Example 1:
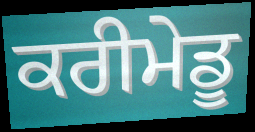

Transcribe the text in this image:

ਕਰੀਮੇਡੂ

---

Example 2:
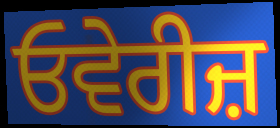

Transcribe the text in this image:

ਓਵੇਰੀਜ਼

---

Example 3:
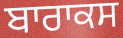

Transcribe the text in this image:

ਬਾਰਾਕਸ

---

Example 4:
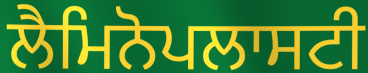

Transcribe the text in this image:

ਲੈਮਿਨੋਪਲਾਸਟੀ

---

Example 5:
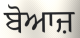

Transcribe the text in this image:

ਬੋਆਜ਼